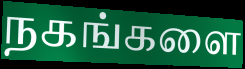
நகங்களை